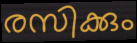
രസിക്കും